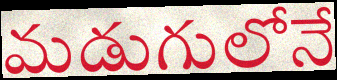
మడుగులోనే